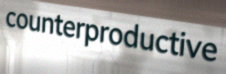
counterproductive